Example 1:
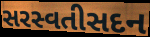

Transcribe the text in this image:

સરસ્વતીસદન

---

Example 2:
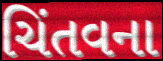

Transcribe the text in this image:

ચિંતવના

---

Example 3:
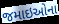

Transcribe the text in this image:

જમાઇઓના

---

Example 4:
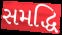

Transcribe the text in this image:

સમદ્ધિ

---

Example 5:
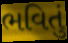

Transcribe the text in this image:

ભવિતું